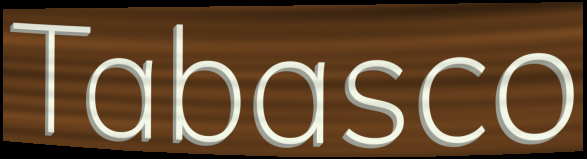
Tabasco